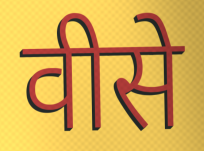
वीसे